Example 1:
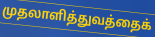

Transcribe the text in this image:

முதலாளித்துவத்தைக்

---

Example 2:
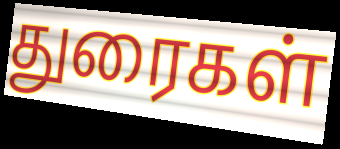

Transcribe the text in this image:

துரைகள்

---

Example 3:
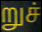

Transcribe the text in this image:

றுச்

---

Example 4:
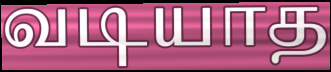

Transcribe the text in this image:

வடியாத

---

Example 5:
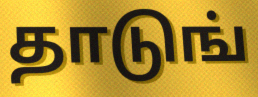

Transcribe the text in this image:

தாடுங்